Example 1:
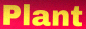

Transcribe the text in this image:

Plant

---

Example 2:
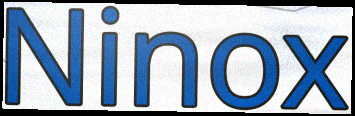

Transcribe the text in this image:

Ninox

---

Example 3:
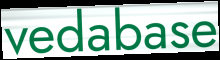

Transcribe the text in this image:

vedabase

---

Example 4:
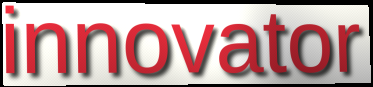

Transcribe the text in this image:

innovator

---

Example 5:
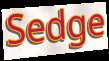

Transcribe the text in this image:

Sedge